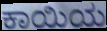
ಕಾಯಿಯ